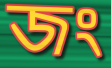
জং